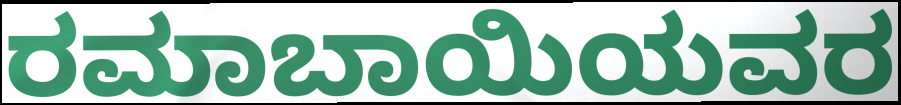
ರಮಾಬಾಯಿಯವರ